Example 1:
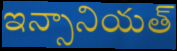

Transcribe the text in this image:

ఇన్సానియత్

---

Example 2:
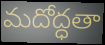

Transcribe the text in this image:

మదోద్ధతా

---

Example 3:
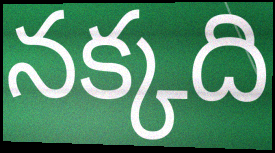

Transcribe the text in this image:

నక్కది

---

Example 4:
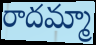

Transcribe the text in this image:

రాదమ్మా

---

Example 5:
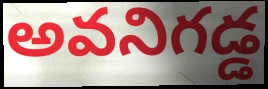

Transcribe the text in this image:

అవనిగడ్డ